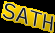
SATH